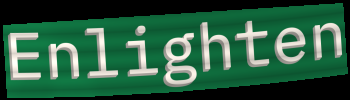
Enlighten